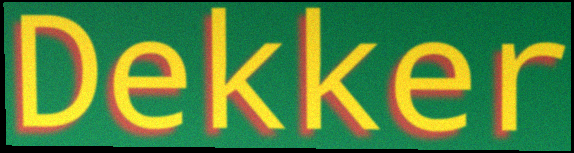
Dekker